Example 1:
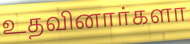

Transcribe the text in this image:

உதவினார்களா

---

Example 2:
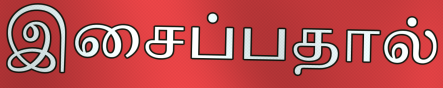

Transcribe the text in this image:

இசைப்பதால்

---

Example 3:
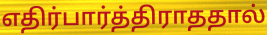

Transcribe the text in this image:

எதிர்பார்த்திராததால்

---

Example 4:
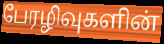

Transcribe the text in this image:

பேரழிவுகளின்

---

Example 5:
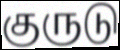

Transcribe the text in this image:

குருடு